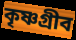
কৃষ্ণগ্রীব